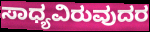
ಸಾಧ್ಯವಿರುವುದರ